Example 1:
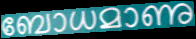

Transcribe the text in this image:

ബോധമാണു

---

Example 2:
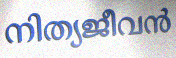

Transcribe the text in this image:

നിത്യജീവൻ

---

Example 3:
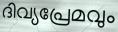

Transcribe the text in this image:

ദിവ്യപ്രേമവും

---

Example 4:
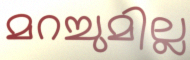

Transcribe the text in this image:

മറച്ചുമില്ല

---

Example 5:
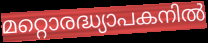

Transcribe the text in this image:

മറ്റൊരദ്ധ്യാപകനിൽ